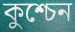
কুশ্চেন